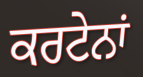
ਕਰਟੇਨਾਂ